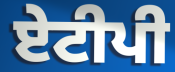
ਏਟੀਪੀ